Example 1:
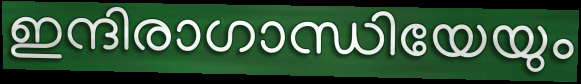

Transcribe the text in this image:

ഇന്ദിരാഗാന്ധിയേയും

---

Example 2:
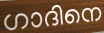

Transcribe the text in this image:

ഗാദിനെ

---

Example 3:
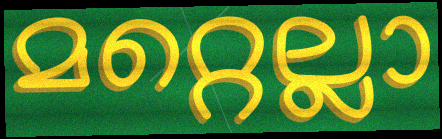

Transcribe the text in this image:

മറ്റെല്ലാ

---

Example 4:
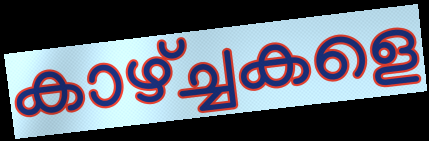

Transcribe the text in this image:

കാഴ്ച്ചകളെ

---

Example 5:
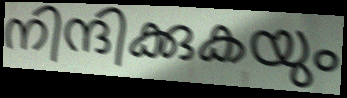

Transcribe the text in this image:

നിന്ദിക്കുകയും